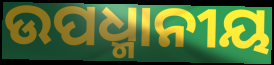
ଉପଧ୍ମାନୀୟ